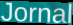
Jornal